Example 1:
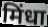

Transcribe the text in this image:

मिंधा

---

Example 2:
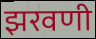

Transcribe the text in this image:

झरवणी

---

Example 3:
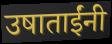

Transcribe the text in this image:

उषाताईंनी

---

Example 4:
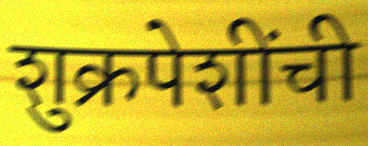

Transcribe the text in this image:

शुक्रपेशींची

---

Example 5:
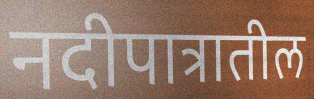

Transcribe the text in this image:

नदीपात्रातील